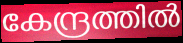
കേന്ദ്രത്തിൽ